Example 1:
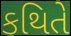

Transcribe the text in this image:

કથિતે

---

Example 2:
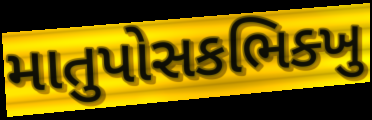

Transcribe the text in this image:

માતુપોસકભિક્ખુ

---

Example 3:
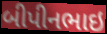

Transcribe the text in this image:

બીપીનભાઇ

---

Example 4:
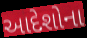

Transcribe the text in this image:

આદેશોના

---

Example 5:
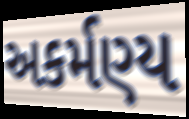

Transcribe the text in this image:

અકર્મણ્ય